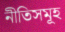
নীতিসমূহ